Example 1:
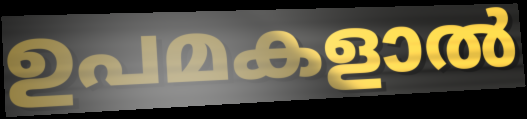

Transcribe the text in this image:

ഉപമകളാൽ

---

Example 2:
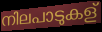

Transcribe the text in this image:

നിലപാടുകള്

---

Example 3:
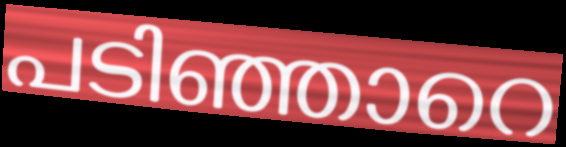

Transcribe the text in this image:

പടിഞ്ഞാറെ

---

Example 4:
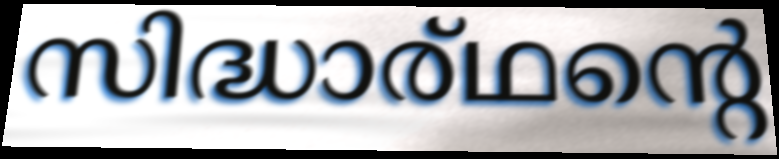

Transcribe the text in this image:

സിദ്ധാര്ഥന്റെ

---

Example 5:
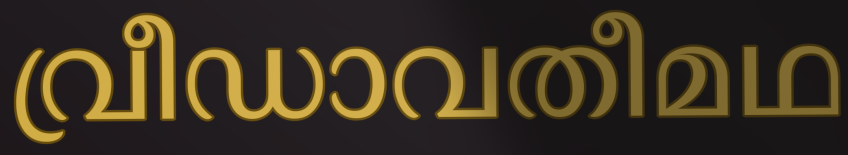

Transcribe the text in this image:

വ്രീഡാവതീമഥ